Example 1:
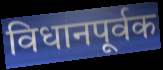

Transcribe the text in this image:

विधानपूर्वक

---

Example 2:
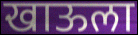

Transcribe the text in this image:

खाऊला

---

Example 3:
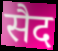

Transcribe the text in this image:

सैद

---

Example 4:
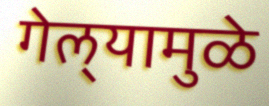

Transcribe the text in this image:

गेल्यामुळे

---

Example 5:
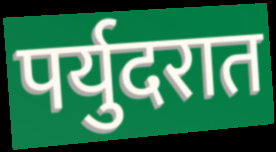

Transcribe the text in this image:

पर्युदरात